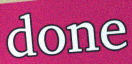
done